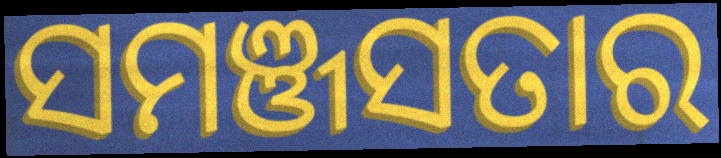
ସମଞ୍ଜସତାର